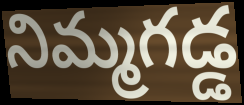
నిమ్మగడ్డ